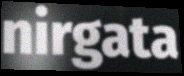
nirgata